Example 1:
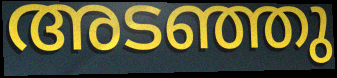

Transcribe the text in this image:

അടഞ്ഞു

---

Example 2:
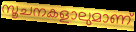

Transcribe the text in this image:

സൂചനകളാലുമാണ്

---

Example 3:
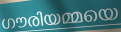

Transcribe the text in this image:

ഗൗരിയമ്മയെ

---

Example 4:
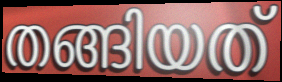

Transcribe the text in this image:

തങ്ങിയത്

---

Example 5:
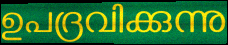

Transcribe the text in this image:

ഉപദ്രവിക്കുന്നു